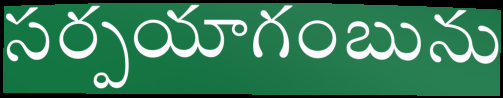
సర్పయాగంబును